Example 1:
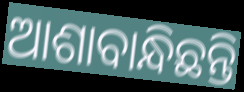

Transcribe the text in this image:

ଆଶାବାନ୍ଧିଛନ୍ତି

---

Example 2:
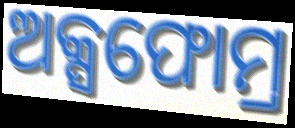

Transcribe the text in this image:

ଅକ୍ସଫୋମ୍ର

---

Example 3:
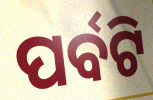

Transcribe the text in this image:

ପର୍ବଟି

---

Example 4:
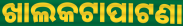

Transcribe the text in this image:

ଖାଲକଟାପାଟଣା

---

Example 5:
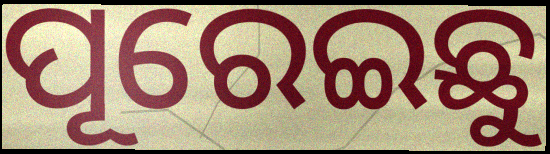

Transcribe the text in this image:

ପୂରେଇଛୁ